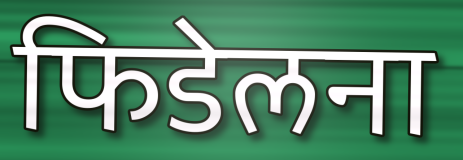
फिडेलना